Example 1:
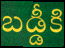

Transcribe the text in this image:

బడ్డీకి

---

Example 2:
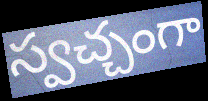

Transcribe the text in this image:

స్వచ్చంగా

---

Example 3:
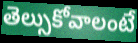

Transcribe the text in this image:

తెల్సుకోవాలంటే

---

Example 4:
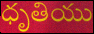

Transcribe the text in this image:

ధృతియు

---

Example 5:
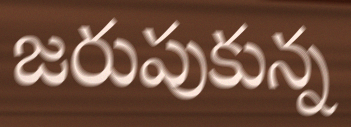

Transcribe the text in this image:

జరుపుకున్న